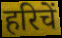
हरिचें